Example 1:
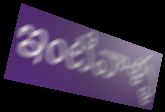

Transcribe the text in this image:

ఇంటివాళ్ళ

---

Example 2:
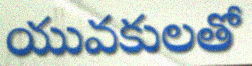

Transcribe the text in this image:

యువకులతో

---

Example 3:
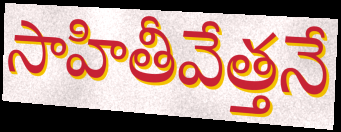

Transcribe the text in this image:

సాహితీవేత్తనే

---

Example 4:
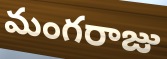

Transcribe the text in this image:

మంగరాజు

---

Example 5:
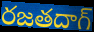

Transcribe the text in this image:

రజతదాగ్